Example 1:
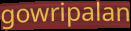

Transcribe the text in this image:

gowripalan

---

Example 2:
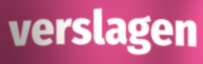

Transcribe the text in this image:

verslagen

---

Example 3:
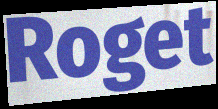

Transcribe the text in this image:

Roget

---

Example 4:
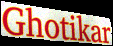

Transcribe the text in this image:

Ghotikar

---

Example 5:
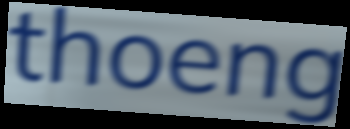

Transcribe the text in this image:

thoeng